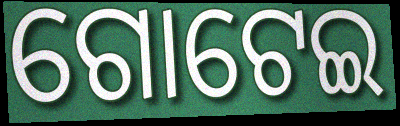
ଗୋଟେଇ